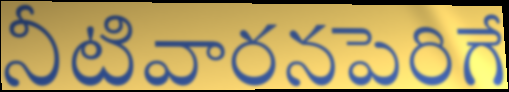
నీటివారనపెరిగే